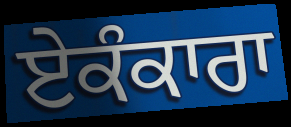
ਏਕੰਕਾਰਾ